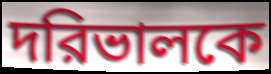
দরিভালকে